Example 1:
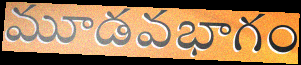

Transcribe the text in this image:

మూడవభాగం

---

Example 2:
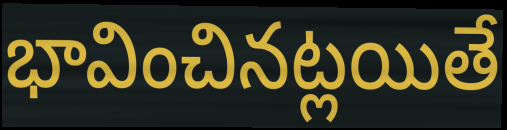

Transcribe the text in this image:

భావించినట్లయితే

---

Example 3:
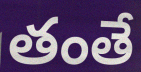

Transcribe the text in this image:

తంతే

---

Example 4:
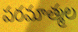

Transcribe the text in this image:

పరమాత్మల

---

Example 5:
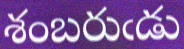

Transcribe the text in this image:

శంబరుఁడు